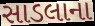
સાડલાના